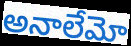
అనాలేమో